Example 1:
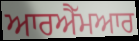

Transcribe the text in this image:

ਆਰਐੱਮਆਰ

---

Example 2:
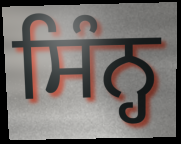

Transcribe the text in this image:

ਸਿੰਨ੍ਹ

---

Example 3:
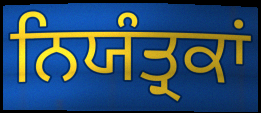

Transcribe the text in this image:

ਨਿਯੰਤ੍ਰਕਾਂ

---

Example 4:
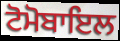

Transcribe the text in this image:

ਟੋਮੋਬਾਇਲ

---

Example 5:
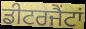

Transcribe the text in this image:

ਡੀਟਰਜੈਂਟਾਂ